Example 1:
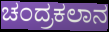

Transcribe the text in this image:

ಚಂದ್ರಕಲಾನ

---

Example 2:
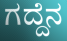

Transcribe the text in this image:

ಗದ್ದೆನ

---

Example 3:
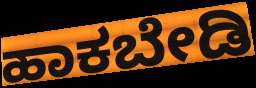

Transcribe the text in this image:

ಹಾಕಬೇಡಿ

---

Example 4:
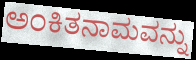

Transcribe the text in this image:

ಅಂಕಿತನಾಮವನ್ನು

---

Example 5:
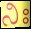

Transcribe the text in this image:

ನಿಃ